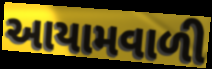
આયામવાળી